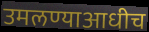
उमलण्याआधीच